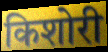
किशोरी